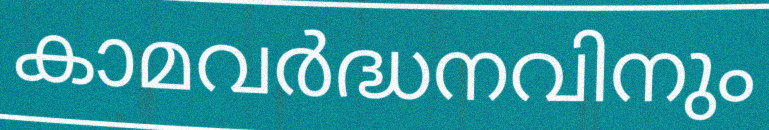
കാമവർദ്ധനവിനും